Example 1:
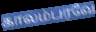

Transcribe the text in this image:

காலம்பரவே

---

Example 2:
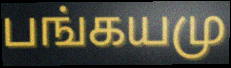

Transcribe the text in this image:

பங்கயமு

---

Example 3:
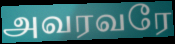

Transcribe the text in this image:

அவரவரே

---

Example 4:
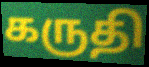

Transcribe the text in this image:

கருதி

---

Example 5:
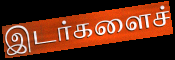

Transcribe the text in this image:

இடர்களைச்